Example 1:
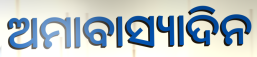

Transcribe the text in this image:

ଅମାବାସ୍ୟାଦିନ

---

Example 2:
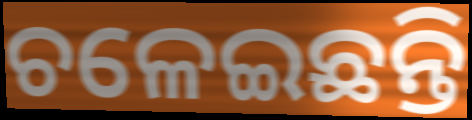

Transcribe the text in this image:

ଚଳେଇଛନ୍ତି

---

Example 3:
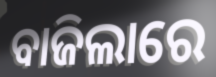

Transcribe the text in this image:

ବାଜିଲାରେ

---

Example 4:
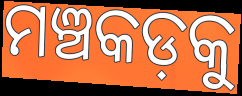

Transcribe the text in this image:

ମଞ୍ଚକଡ଼କୁ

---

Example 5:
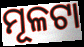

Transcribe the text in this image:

ମୂଳଟା